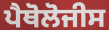
ਪੈਥੋਲੋਜੀਸ